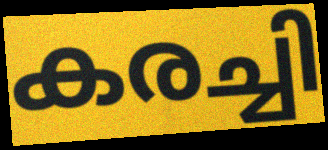
കരച്ചി